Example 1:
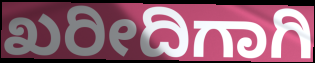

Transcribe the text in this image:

ಖರೀದಿಗಾಗಿ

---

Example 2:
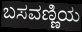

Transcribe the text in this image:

ಬಸವಣ್ಣಿಯ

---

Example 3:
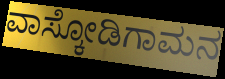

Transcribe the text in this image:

ವಾಸ್ಕೋಡಿಗಾಮನ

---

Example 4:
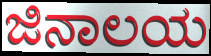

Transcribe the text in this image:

ಜಿನಾಲಯ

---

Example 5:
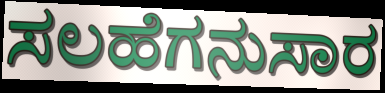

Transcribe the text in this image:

ಸಲಹೆಗನುಸಾರ